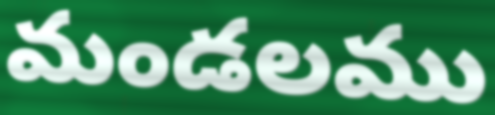
మండలము